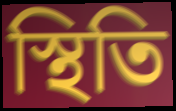
স্থিতি